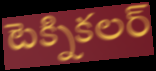
టెక్నికలర్